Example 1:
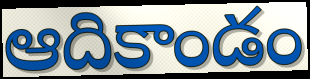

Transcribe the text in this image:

ఆదికాండం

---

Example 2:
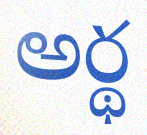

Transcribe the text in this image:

అర్థ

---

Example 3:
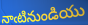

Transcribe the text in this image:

నాఁటినుండియు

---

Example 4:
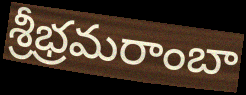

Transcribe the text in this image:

శ్రీభ్రమరాంబా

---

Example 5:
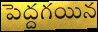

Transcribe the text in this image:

పెద్దగయిన